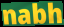
nabh